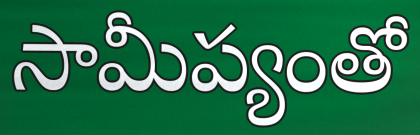
సామీప్యంతో